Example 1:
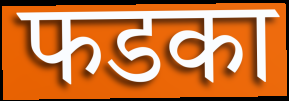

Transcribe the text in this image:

फडका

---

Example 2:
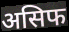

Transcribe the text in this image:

असिफ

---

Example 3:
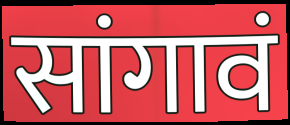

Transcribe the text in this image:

सांगावं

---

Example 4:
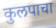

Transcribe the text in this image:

कुलपाचा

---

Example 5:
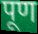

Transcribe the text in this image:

पूण